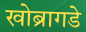
खोब्रागडे